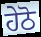
ਹੇਠੋ